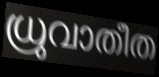
ധ്രുവാതീത